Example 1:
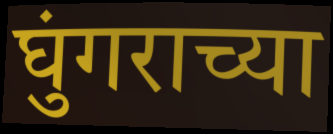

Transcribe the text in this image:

घुंगराच्या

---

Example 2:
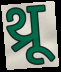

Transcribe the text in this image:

थ्रू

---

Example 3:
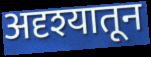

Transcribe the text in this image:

अदृश्यातून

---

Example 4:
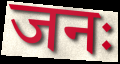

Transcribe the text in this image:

जनः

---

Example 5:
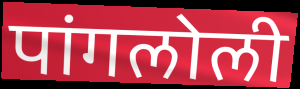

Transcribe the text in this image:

पांगलोली